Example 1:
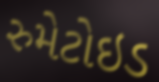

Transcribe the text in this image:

રુમેટોઇડ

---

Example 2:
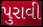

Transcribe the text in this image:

પુરાવી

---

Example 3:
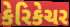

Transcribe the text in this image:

કેરિકેચર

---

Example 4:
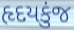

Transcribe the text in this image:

હૃદયકુંજ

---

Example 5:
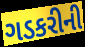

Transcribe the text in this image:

ગડકરીની